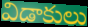
విడాకులు